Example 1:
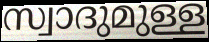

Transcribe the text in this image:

സ്വാദുമുള്ള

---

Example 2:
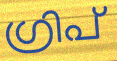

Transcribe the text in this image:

ഗ്രിപ്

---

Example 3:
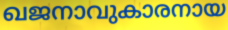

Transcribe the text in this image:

ഖജനാവുകാരനായ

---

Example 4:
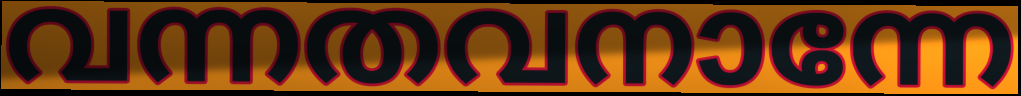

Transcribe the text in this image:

വന്നതവനാന്നേ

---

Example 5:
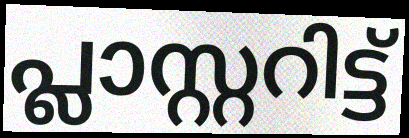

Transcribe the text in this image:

പ്ലാസ്റ്ററിട്ട്